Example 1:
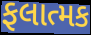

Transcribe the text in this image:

ફલાત્મક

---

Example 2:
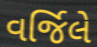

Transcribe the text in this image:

વર્જિલે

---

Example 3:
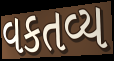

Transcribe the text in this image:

વકતવ્ય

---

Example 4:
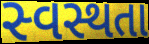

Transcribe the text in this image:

સ્વસ્થતા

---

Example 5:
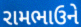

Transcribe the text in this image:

રામભાઉને